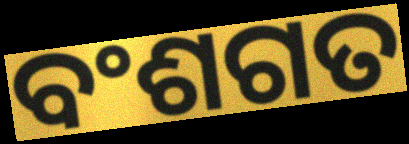
ବଂଶଗତ